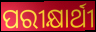
ପରୀକ୍ଷାର୍ଥୀ